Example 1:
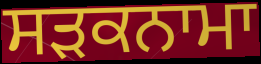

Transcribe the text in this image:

ਸਡ਼ਕਨਾਮਾ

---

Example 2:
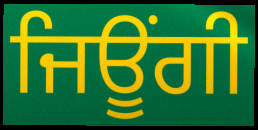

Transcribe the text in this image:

ਜਿਊਂਗੀ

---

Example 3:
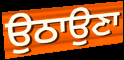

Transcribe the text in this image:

ਉਠਾਉਣਾ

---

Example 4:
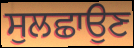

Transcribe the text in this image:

ਸੁਲਛਾਉਣ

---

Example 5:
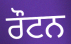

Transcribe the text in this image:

ਰੌਟਨ